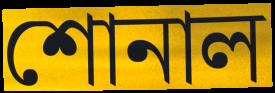
শোনাল